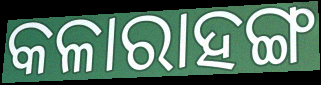
କଳାରାହଙ୍ଗ